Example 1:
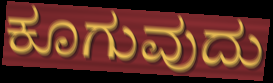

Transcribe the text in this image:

ಕೂಗುವುದು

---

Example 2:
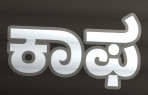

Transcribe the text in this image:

ಕಾಫ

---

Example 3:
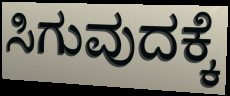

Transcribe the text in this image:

ಸಿಗುವುದಕ್ಕೆ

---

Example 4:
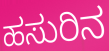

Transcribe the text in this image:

ಹಸುರಿನ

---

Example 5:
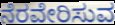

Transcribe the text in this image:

ನೆರವೇರಿಸುವ